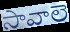
సావాలె